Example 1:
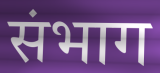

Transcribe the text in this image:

संभाग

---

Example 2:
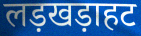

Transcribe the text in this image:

लड़खड़ाहट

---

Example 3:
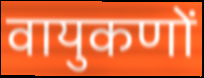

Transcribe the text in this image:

वायुकणों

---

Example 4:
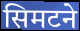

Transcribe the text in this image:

सिमटने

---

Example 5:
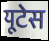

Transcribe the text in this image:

यूटेस